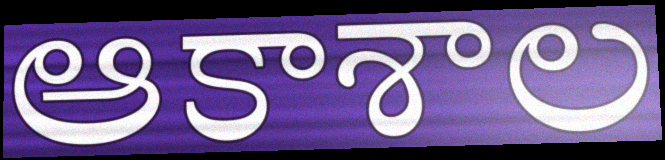
ఆకాశాల